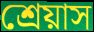
শ্রেয়াস